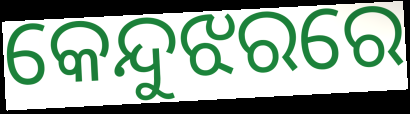
କେନ୍ଦୁଝରରେ